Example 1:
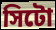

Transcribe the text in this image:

সিটো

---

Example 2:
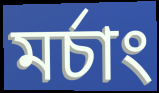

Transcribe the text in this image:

মৰ্চাং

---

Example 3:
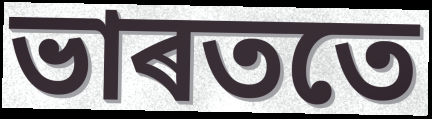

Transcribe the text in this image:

ভাৰততে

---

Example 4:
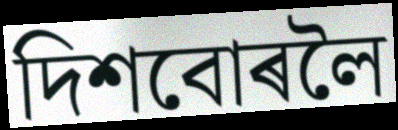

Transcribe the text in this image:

দিশবোৰলৈ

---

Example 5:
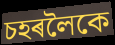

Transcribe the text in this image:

চহৰলৈকে